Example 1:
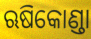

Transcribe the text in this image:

ଋଷିକୋଣ୍ଡା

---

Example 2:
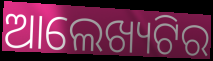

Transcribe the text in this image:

ଆଲେଖ୍ୟଟିର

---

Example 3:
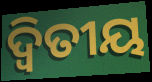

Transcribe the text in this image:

ଦ୍ୱିତୀୟ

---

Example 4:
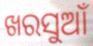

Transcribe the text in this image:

ଖରସୁଆଁ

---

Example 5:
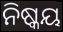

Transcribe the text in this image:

ନିଷ୍କୟ